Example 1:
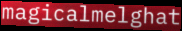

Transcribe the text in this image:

magicalmelghat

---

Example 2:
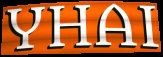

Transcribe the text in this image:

YHAI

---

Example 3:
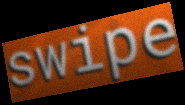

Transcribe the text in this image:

swipe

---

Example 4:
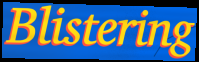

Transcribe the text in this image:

Blistering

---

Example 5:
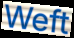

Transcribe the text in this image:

Weft